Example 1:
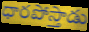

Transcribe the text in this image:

ధారపోస్తాడు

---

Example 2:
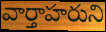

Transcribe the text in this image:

వార్తాహరుని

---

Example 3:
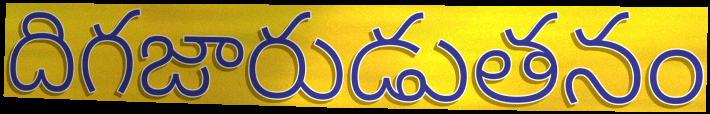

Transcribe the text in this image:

దిగజారుడుతనం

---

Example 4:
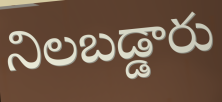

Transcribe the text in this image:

నిలబడ్డారు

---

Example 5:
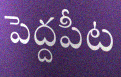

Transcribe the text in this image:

పెద్దపీట